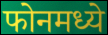
फोनमध्ये